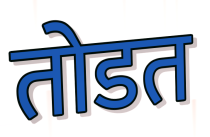
तोडत